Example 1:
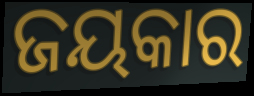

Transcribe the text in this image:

ଜୟକାର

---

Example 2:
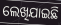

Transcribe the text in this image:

ଲେଖିଯାଇଛି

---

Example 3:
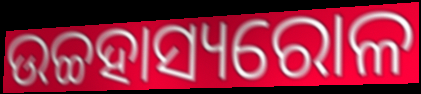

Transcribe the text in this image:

ଉଚ୍ଚହାସ୍ୟରୋଳ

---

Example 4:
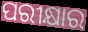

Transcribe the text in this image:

ପରୀକ୍ଷାର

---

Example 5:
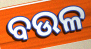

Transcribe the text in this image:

ବଉଳ